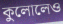
কুলোলেও